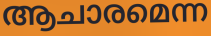
ആചാരമെന്ന